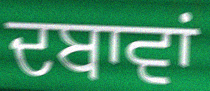
ਦਬਾਵਾਂ